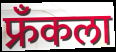
फ्रॅंकला